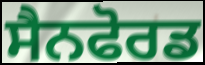
ਸੈਨਫੋਰਡ